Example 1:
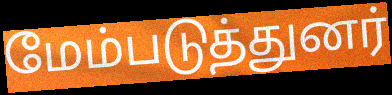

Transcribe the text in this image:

மேம்படுத்துனர்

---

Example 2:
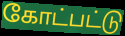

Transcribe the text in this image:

கோட்பட்டு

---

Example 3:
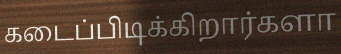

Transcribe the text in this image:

கடைப்பிடிக்கிறார்களா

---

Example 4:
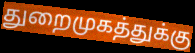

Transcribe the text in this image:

துறைமுகத்துக்கு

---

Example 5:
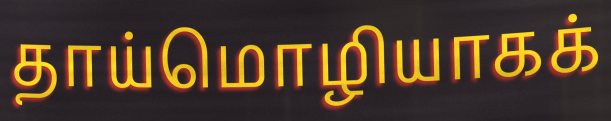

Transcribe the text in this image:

தாய்மொழியாகக்